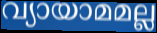
വ്യായാമമല്ല